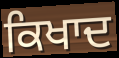
ਕਿਖਾਦ